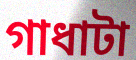
গাধাটা